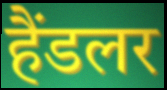
हैंडलर